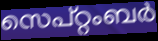
സെപ്റ്റംബർ